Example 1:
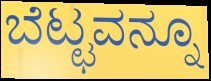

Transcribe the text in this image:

ಬೆಟ್ಟವನ್ನೂ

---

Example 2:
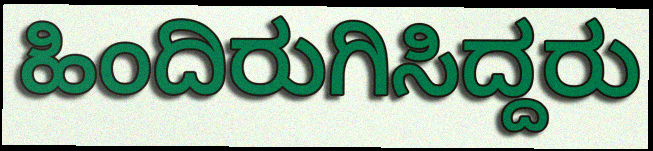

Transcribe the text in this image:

ಹಿಂದಿರುಗಿಸಿದ್ದರು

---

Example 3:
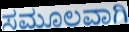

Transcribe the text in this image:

ಸಮೂಲವಾಗಿ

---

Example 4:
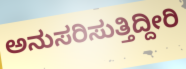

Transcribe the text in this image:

ಅನುಸರಿಸುತ್ತಿದ್ದೀರಿ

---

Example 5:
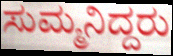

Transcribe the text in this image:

ಸುಮ್ಮನಿದ್ದರು